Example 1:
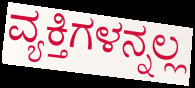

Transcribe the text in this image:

ವ್ಯಕ್ತಿಗಳನ್ನಲ್ಲ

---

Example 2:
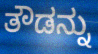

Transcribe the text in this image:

ತೌಡನ್ನು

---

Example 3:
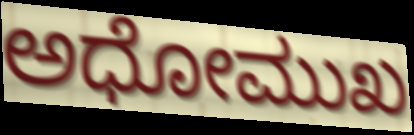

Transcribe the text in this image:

ಅಧೋಮುಖ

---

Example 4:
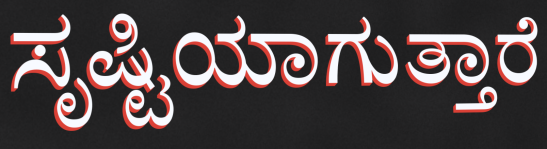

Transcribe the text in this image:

ಸೃಷ್ಟಿಯಾಗುತ್ತಾರೆ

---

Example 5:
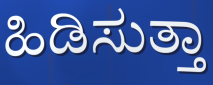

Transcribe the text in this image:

ಹಿಡಿಸುತ್ತಾ